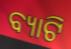
ବ୍ୟାଟି